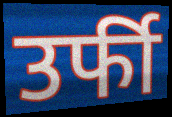
उर्फी